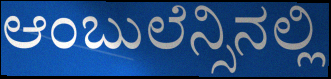
ಆಂಬುಲೆನ್ಸಿನಲ್ಲಿ